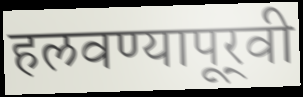
हलवण्यापूर्वी